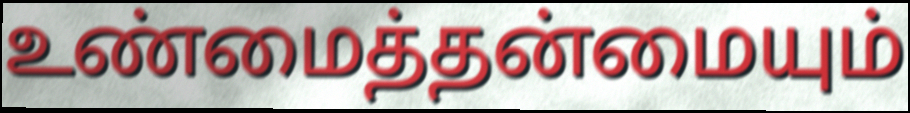
உண்மைத்தன்மையும்